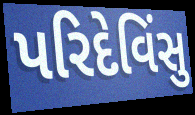
પરિદેવિંસુ